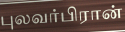
புலவர்பிரான்